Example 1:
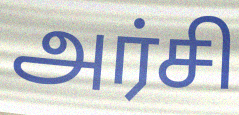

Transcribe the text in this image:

அர்சி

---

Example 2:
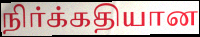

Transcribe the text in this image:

நிர்க்கதியான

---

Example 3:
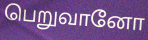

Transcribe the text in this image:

பெறுவானோ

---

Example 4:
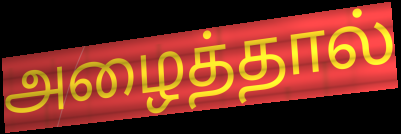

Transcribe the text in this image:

அழைத்தால்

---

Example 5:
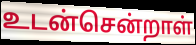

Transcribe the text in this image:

உடன்சென்றாள்